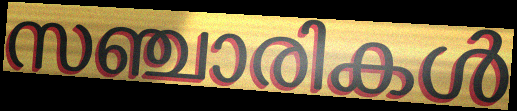
സഞ്ചാരികൾ